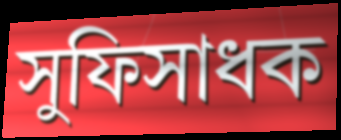
সুফিসাধক